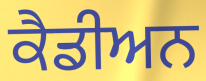
ਕੈਡੀਅਨ